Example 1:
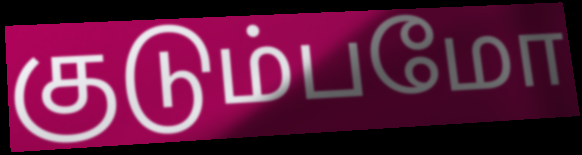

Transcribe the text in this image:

குடும்பமோ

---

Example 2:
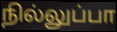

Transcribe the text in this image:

நில்லுப்பா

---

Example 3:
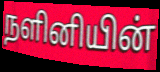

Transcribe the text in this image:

நளினியின்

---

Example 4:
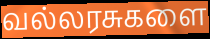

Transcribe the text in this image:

வல்லரசுகளை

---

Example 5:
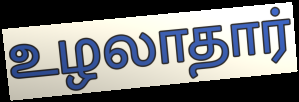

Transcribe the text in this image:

உழலாதார்